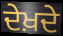
ਦੇਖ਼ਦੇ